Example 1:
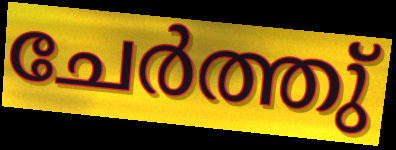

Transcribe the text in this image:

ചേർത്തു്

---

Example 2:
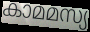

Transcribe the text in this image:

കാമമസ്യ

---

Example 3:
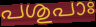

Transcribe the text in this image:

പശുപാഃ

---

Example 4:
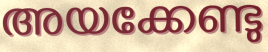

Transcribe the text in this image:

അയക്കേണ്ടു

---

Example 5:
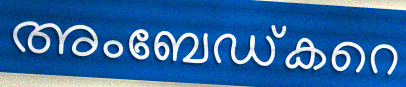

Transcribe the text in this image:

അംബേഡ്കറെ